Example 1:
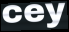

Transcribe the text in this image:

cey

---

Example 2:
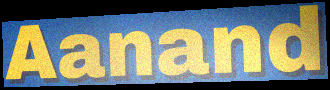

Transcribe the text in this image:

Aanand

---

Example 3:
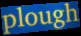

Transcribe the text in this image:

plough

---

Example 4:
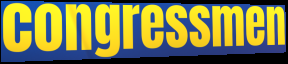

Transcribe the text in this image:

congressmen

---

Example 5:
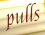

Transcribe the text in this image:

pulls